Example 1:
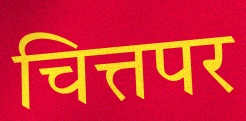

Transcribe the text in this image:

चित्तपर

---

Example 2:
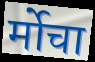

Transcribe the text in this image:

र्मोचा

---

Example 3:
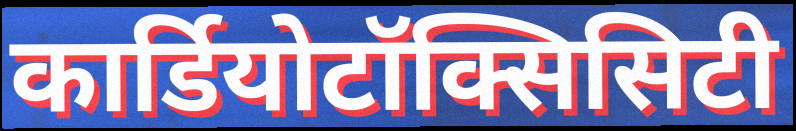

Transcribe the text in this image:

कार्डियोटॉक्सिसिटी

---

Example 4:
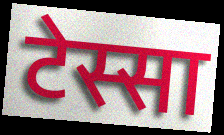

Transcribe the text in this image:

टेस्सा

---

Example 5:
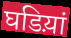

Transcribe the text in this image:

घडिय़ां